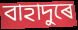
বাহাদুৰে